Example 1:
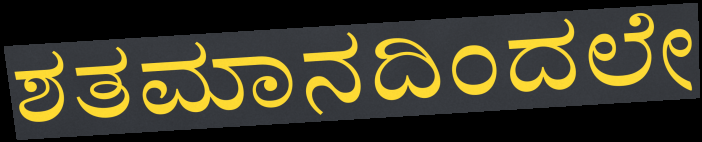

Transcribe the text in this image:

ಶತಮಾನದಿಂದಲೇ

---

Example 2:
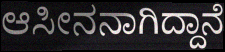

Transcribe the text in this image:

ಆಸೀನನಾಗಿದ್ದಾನೆ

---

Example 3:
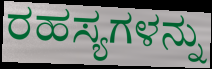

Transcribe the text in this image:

ರಹಸ್ಯಗಳನ್ನು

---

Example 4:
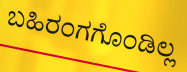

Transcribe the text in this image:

ಬಹಿರಂಗಗೊಂಡಿಲ್ಲ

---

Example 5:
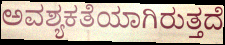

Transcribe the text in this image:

ಅವಶ್ಯಕತೆಯಾಗಿರುತ್ತದೆ